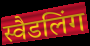
स्वैडलिंग